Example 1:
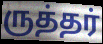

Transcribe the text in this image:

ருத்தர்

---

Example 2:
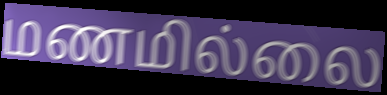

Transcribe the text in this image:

மணமில்லை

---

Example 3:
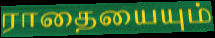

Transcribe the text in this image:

ராதையையும்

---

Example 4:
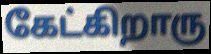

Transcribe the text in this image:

கேட்கிறாரு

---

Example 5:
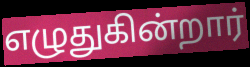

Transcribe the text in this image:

எழுதுகின்றார்